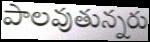
పాలవుతున్నరు